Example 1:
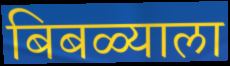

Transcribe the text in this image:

बिबळ्याला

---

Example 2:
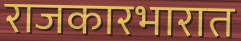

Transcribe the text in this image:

राजकारभारात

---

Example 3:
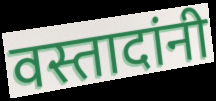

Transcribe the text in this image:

वस्तादांनी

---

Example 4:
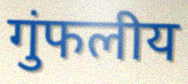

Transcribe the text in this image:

गुंफलीय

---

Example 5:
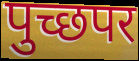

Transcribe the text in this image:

पुच्छपर